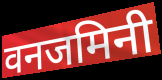
वनजमिनी